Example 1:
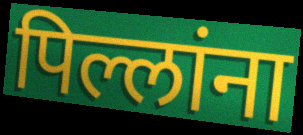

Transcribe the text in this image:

पिल्लांना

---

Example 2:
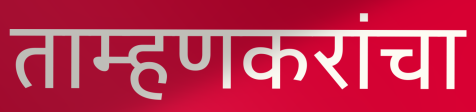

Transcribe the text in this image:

ताम्हणकरांचा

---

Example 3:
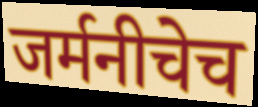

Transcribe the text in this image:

जर्मनीचेच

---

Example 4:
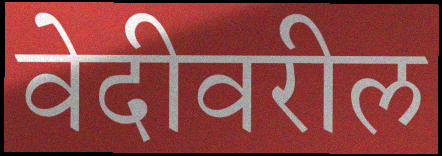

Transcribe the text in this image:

वेदीवरील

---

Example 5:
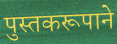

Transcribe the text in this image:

पुस्तकरूपाने